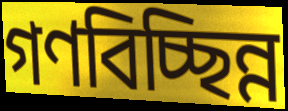
গণবিচ্ছিন্ন